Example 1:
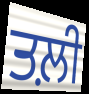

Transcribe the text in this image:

ਤਲ਼ੀ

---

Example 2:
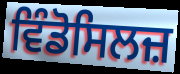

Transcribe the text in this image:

ਵਿੰਡੋਸਿਲਜ਼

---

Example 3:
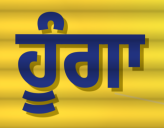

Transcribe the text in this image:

ਹੂੰਗਾ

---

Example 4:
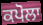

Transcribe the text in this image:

ਕਪੋਲਾ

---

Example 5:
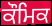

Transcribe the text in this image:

ਕੌਮਿਕ